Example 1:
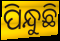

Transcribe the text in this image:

ପିନ୍ଧୁଛି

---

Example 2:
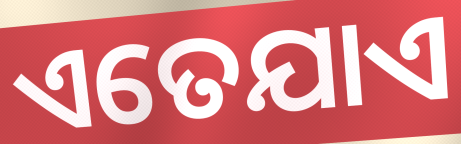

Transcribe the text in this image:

ଏତେଯାଏ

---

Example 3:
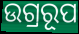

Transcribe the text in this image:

ଉଗ୍ରରୂପ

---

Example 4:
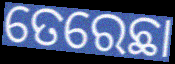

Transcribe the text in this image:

ତେରେଛା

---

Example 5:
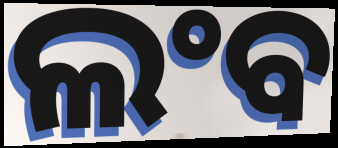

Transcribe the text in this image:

ଲଂବ